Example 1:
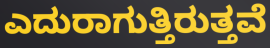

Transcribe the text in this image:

ಎದುರಾಗುತ್ತಿರುತ್ತವೆ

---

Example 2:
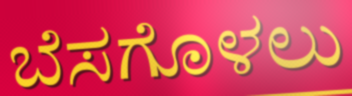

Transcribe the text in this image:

ಬೆಸಗೊಳಲು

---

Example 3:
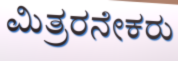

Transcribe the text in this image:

ಮಿತ್ರರನೇಕರು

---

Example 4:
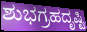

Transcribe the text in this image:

ಶುಭಗ್ರಹದೃಷ್ಟಿ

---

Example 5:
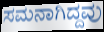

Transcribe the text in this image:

ಸಮನಾಗಿದ್ದವು